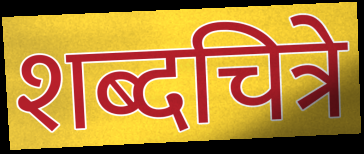
शब्दचित्रे